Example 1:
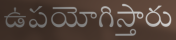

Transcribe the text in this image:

ఉపయోగిస్తారు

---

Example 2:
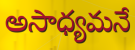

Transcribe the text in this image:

అసాధ్యమనే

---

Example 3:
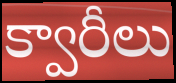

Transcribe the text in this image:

క్వారీలు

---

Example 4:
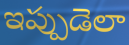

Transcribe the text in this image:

ఇప్పుడెలా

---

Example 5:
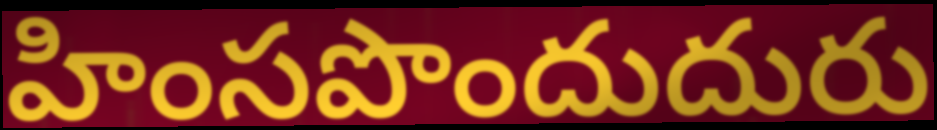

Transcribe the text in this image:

హింసపొందుదురు